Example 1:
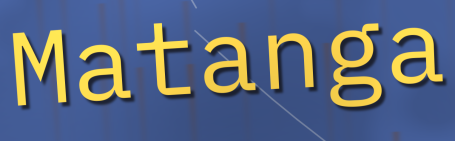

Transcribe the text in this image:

Matanga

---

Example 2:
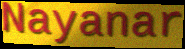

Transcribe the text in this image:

Nayanar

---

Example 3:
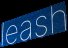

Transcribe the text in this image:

leash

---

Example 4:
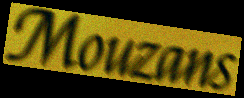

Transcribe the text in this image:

Mouzans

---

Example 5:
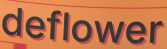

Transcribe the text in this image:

deflower